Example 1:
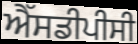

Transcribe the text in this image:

ਐੱਸਡੀਪੀਸੀ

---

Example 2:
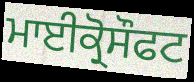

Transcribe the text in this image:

ਮਾਈਕ੍ਰੋਸੌਫਟ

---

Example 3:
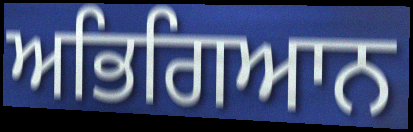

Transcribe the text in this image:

ਅਭਿਗਿਆਨ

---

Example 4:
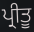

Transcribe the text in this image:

ਪ੍ਰੀਤੂ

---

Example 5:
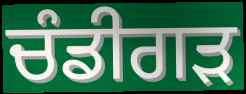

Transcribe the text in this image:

ਚੰਡੀਗਡ਼